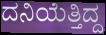
ದನಿಯೆತ್ತಿದ್ದ